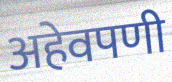
अहेवपणी